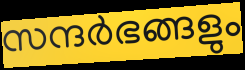
സന്ദർഭങ്ങളും